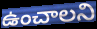
ఉంచాలని